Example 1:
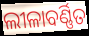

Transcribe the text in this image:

ଲୀଳାବର୍ଣ୍ଣିତ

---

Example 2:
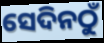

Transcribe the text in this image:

ସେଦିନଠୁଁ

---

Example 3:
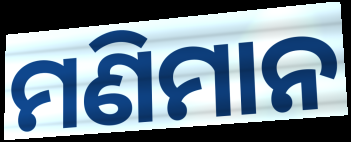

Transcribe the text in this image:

ମଣିମାନ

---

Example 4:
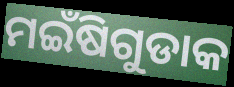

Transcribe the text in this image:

ମଇଁଷିଗୁଡାକ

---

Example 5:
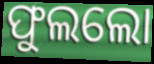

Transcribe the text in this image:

ଫୁଲଲୋ